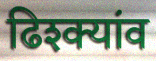
ढिश्क्यांव